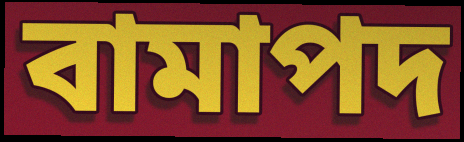
বামাপদ